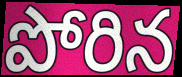
పోరిన